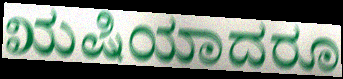
ಋಷಿಯಾದರೂ